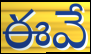
ఈవే